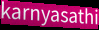
karnyasathi